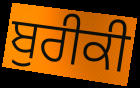
ਬੁਰੀਕੀ